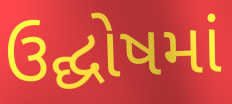
ઉદ્ઘોષમાં